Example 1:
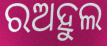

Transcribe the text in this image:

ରଅହୁଲ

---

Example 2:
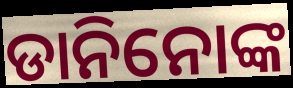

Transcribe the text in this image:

ଡାନିନୋଙ୍କ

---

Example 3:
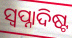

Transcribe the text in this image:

ସ୍ୱପ୍ନାଦିଷ୍ଟ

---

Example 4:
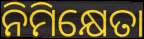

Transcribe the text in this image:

ନିମିକ୍ଷେତା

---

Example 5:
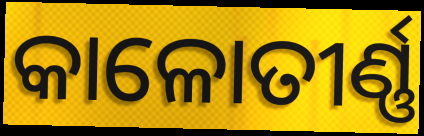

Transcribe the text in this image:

କାଳୋତୀର୍ଣ୍ଣ